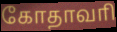
கோதாவரி